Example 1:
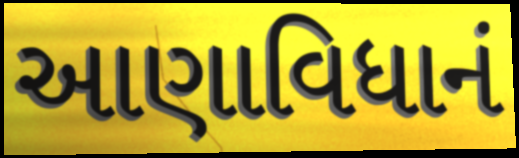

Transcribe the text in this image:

આણાવિધાનં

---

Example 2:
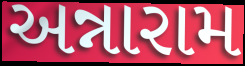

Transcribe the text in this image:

અન્નારામ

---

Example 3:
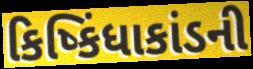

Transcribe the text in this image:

કિષ્કિંધાકાંડની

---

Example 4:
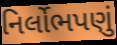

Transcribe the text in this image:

નિર્લોભપણું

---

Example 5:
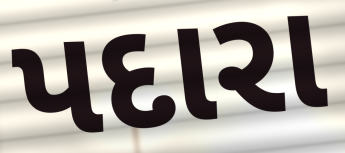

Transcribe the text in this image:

પદારા